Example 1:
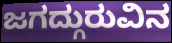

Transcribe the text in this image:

ಜಗದ್ಗುರುವಿನ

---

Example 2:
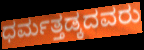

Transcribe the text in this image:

ಧರ್ಮತ್ತಡ್ಕದವರು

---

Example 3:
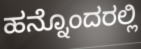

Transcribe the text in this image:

ಹನ್ನೊಂದರಲ್ಲಿ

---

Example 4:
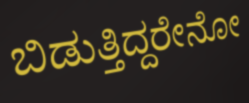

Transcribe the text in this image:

ಬಿಡುತ್ತಿದ್ದರೇನೋ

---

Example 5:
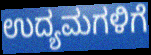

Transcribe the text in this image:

ಉದ್ಯಮಗಳಿಗೆ